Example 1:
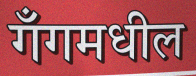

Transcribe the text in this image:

गँगमधील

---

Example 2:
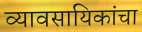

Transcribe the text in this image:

व्यावसायिकांचा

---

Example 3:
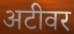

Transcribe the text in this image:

अटीवर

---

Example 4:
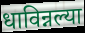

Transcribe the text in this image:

धाविन्नल्या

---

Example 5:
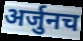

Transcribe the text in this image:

अर्जुनच